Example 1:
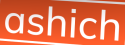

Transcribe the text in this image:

ashich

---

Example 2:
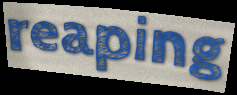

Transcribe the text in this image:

reaping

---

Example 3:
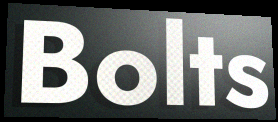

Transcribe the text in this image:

Bolts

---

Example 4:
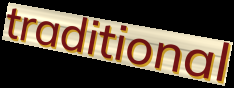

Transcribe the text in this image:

traditional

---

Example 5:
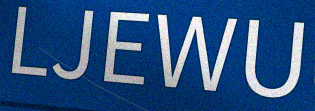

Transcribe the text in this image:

LJEWU